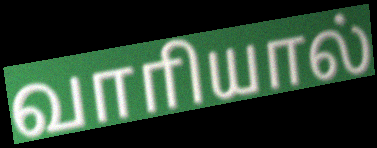
வாரியால்